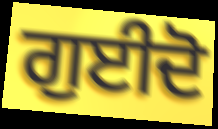
ਗੁਈਦੋ